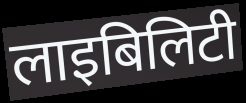
लाइबिलिटी